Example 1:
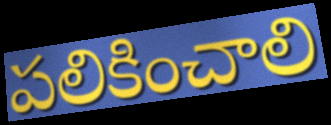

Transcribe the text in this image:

పలికించాలి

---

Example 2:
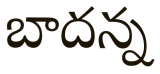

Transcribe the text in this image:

బాదన్న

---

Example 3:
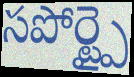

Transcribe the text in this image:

సపోర్ట్పై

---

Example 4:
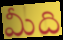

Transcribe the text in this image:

మీది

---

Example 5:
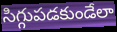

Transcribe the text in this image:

సిగ్గుపడకుండేలా